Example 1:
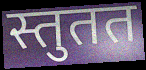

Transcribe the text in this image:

स्तुतत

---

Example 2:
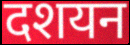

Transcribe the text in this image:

दशयन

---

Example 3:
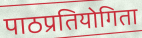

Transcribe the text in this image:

पाठप्रतियोगिता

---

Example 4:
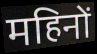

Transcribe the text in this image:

महिनों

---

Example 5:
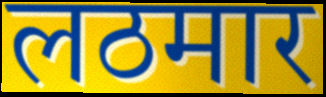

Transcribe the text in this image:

लठमार